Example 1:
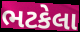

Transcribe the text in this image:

ભટકેલા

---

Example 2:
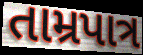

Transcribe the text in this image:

તામ્રપાત્ર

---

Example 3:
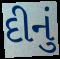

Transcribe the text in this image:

દીનું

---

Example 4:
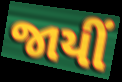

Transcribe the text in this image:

જાયીં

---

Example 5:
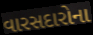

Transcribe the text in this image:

વારસદારોના